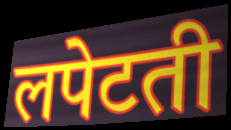
लपेटती